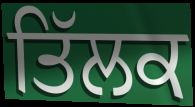
ਤਿੱਲਕ